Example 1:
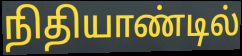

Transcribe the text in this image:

நிதியாண்டில்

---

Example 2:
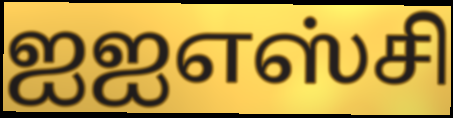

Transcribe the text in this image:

ஐஐஎஸ்சி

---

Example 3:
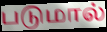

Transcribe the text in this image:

படுமால்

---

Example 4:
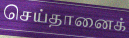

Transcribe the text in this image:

செய்தானைக்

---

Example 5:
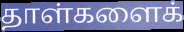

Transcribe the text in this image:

தாள்களைக்